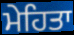
ਮੇਹਿਤਾ